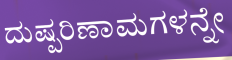
ದುಷ್ಪರಿಣಾಮಗಳನ್ನೇ